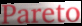
Pareto